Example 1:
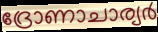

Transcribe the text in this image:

ദ്രോണാചാര്യർ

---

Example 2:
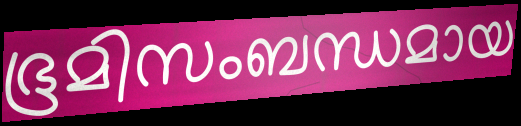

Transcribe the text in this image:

ഭൂമിസംബന്ധമായ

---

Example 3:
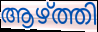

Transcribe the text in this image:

ആഴ്ത്തി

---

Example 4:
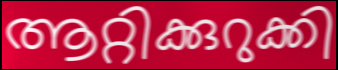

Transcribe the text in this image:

ആറ്റിക്കുറുക്കി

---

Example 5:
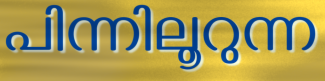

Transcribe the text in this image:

പിന്നിലൂറുന്ന